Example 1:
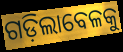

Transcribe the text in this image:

ଗଡ଼ିଲାବେଳକୁ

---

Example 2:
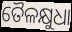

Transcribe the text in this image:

ତୈଳକ୍ଷୁଧା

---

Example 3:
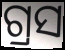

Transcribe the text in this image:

ଗ୍ରସ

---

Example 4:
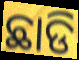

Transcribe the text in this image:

ଛାଡି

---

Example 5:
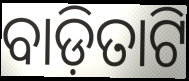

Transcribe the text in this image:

ବାଡ଼ିତାଟି